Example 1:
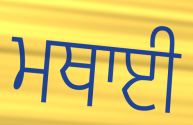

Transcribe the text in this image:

ਮਥਾਈ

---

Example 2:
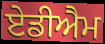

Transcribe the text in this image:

ਏਡੀਐਮ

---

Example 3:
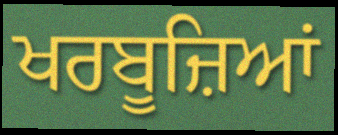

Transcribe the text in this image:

ਖਰਬੂਜ਼ਿਆਂ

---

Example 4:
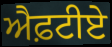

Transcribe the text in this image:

ਐਫ਼ਟੀਏ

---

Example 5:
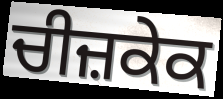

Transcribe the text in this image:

ਚੀਜ਼ਕੇਕ